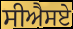
ਸੀਐਸਏ